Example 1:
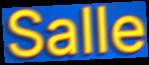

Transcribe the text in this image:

Salle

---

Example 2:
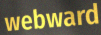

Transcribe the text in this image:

webward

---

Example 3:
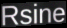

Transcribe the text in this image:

Rsine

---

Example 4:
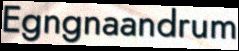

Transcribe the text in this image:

Egngnaandrum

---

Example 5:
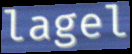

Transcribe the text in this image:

lagel